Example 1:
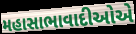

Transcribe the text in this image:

મહાસાભાવાદીઓએ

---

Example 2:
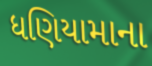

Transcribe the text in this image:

ધણિયામાના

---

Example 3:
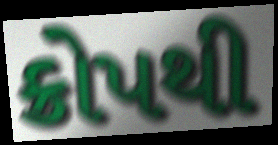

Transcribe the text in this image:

ક્રોપથી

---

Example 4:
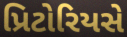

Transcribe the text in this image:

પ્રિટોરિયસે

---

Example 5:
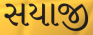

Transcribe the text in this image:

સયાજી